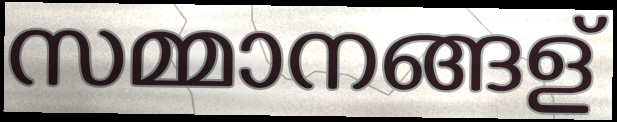
സമ്മാനങ്ങള്